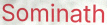
Sominath